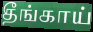
தீங்காய்